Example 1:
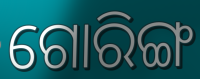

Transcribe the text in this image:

ଗୋରିଙ୍ଗ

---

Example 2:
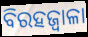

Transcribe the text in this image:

ବିରହଜ୍ୱାଳା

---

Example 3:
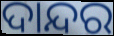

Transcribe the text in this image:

ଦାନ୍ଦର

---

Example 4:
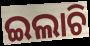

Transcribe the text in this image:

ଇଲାଚି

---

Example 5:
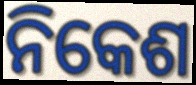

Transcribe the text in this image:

ନିକେଶ